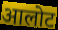
आलोट